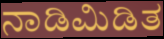
ನಾಡಿಮಿಡಿತ